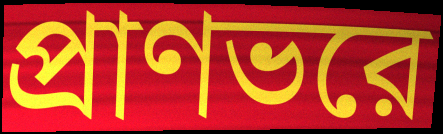
প্রাণভরে